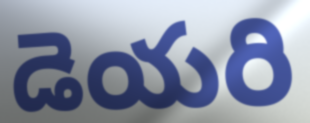
డెయరి